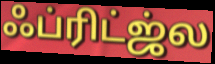
ஃப்ரிட்ஜ்ல